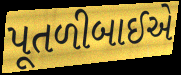
પૂતળીબાઈએ